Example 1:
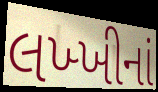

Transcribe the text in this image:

લખ્ખીનાં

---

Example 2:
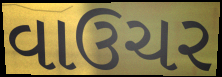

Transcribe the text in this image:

વાઉચર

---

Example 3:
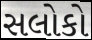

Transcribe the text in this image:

સલોકો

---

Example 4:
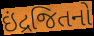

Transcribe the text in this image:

ઇંદ્રજિતનો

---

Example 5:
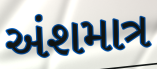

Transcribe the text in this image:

અંશમાત્ર